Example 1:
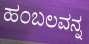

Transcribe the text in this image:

ಹಂಬಲವನ್ನ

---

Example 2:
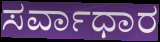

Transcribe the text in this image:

ಸರ್ವಾಧಾರ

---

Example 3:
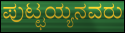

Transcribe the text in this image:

ಪುಟ್ಟಯ್ಯನವರು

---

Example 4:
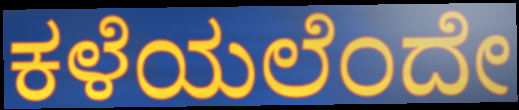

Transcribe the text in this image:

ಕಳೆಯಲೆಂದೇ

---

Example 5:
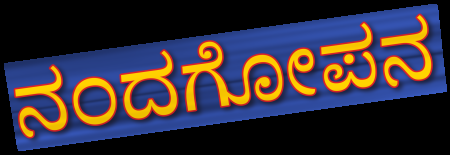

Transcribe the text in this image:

ನಂದಗೋಪನ